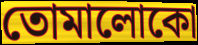
তোমালোকো